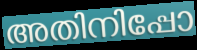
അതിനിപ്പോ